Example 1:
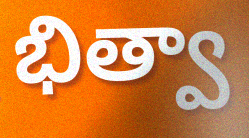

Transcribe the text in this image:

భిత్వా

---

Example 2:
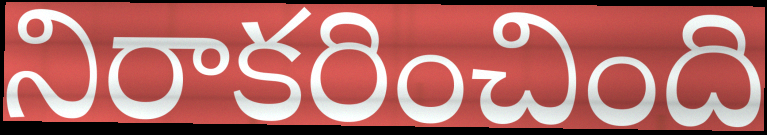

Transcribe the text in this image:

నిరాకరించింది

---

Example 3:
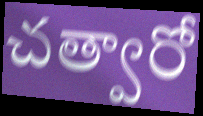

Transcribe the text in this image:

చత్వారో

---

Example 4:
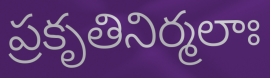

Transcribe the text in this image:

ప్రకృతినిర్మలాః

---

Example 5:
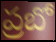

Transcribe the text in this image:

ప్రబో